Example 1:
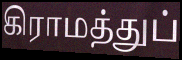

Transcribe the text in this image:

கிராமத்துப்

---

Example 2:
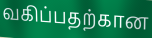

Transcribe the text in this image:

வகிப்பதற்கான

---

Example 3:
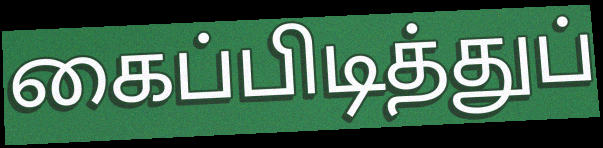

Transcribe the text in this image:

கைப்பிடித்துப்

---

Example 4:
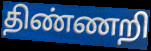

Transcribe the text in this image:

திண்ணறி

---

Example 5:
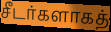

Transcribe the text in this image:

சீடர்களாகத்